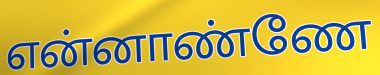
என்னாண்ணே